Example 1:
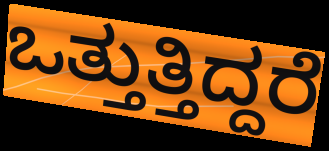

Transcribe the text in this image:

ಒತ್ತುತ್ತಿದ್ದರೆ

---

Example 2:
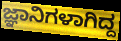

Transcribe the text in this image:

ಜ್ಞಾನಿಗಳಾಗಿದ್ದ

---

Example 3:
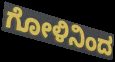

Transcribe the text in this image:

ಗೋಳಿನಿಂದ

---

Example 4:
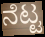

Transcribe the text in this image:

ನೆಟ್ಟ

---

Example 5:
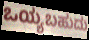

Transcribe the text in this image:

ಒಯ್ಯಬಹುದು